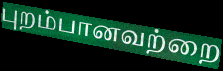
புறம்பானவற்றை